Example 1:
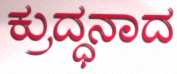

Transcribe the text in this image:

ಕ್ರುದ್ಧನಾದ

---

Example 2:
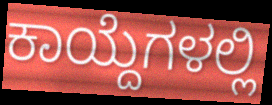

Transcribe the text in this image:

ಕಾಯ್ದೆಗಳಲ್ಲಿ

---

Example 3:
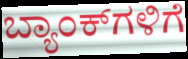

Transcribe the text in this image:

ಬ್ಯಾಂಕ್‌ಗಳಿಗೆ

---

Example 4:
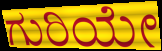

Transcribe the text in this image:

ಗುರಿಯೇ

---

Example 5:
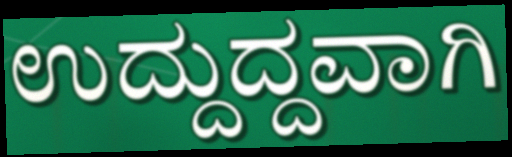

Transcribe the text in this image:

ಉದ್ದುದ್ದವಾಗಿ